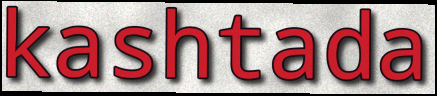
kashtada